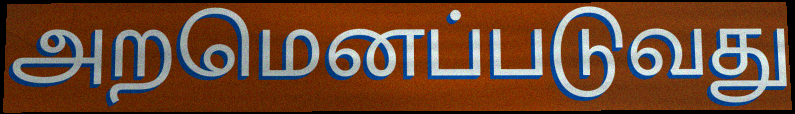
அறமெனப்படுவது